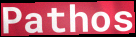
Pathos